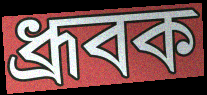
ধ্রূবক